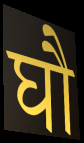
घौ